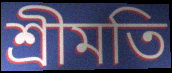
শ্রীমতি